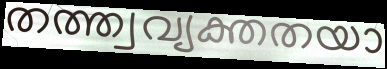
തത്ത്വവ്യക്തതയാ